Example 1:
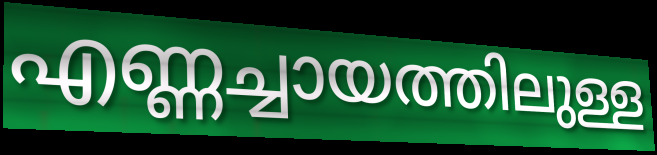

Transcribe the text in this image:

എണ്ണച്ചായത്തിലുള്ള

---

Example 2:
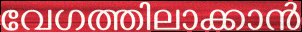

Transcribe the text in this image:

വേഗത്തിലാക്കാൻ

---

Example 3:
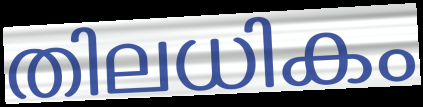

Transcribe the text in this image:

തിലധികം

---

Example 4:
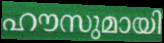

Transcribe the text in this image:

ഹൗസുമായി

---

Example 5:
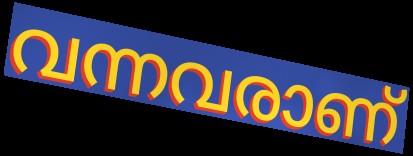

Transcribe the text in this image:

വന്നവരാണ്